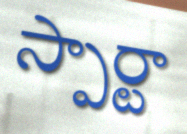
స్పార్టా